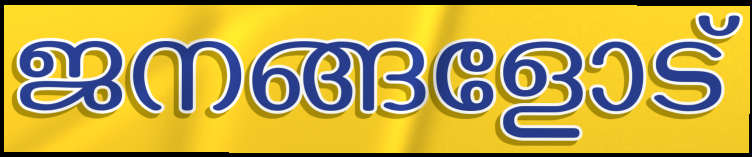
ജനങ്ങളോട്